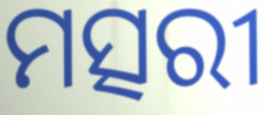
ମତ୍ସରୀ